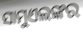
ସାମୁଏଲଙ୍କର